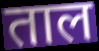
ताल